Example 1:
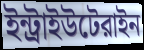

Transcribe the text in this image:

ইন্ট্রাইউটেরাইন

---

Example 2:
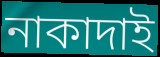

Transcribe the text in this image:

নাকাদাই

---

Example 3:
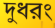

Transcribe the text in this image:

দুধরং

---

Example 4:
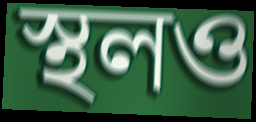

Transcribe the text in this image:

স্থলও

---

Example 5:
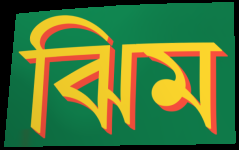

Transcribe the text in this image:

ঝিম